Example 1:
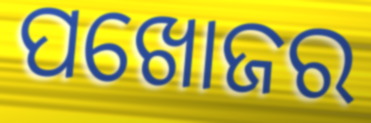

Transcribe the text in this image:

ପଖୋଜର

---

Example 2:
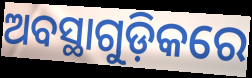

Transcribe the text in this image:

ଅବସ୍ଥାଗୁଡ଼ିକରେ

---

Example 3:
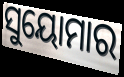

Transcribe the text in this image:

ସୁୟୋମାର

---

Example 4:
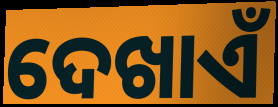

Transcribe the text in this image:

ଦେଖାଏଁ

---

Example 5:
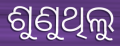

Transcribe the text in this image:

ଶୁଣୁଥିଲୁ